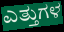
ಎತ್ತುಗಳ